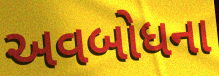
અવબોધના